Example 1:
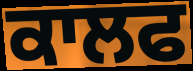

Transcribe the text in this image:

ਕਾਲਫ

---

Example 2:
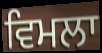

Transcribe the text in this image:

ਵਿਮਲਾ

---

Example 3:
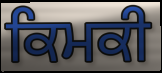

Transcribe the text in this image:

ਕਿਮਕੀ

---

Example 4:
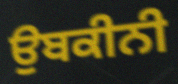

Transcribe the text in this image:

ਉਬਕੀਨੀ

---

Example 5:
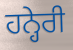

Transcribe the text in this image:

ਹਨ੍ਹੇਰੀ